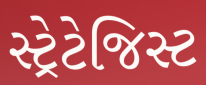
સ્ટ્રેટેજિસ્ટ